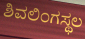
ಶಿವಲಿಂಗಸ್ಥಲ